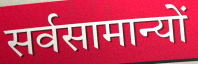
सर्वसामान्यों